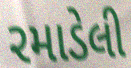
રમાડેલી